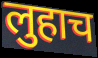
लुहाच